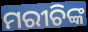
ମରୀଚିଙ୍କ